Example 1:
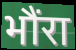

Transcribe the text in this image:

भौंरा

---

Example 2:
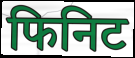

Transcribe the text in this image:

फिनिट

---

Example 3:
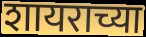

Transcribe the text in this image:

शायराच्या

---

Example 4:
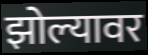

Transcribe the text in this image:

झोल्यावर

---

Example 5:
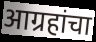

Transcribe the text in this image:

आग्रहांचा